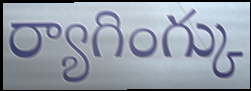
ర్యాగింగ్కు